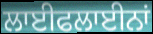
ਲਾਈਫਲਾਈਨਾਂ